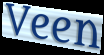
Veen